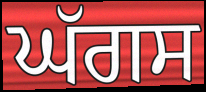
ਘੱਗਸ